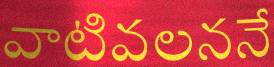
వాటివలననే